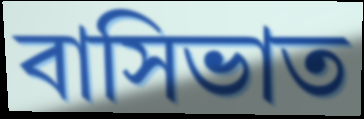
বাসিভাত